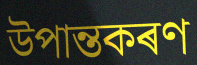
উপান্তকৰণ